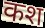
कश